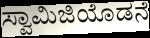
ಸ್ವಾಮಿಜಿಯೊಡನೆ